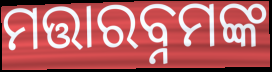
ମତ୍ତାରବ୍ନମଙ୍କ